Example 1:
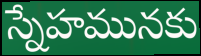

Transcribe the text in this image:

స్నేహమునకు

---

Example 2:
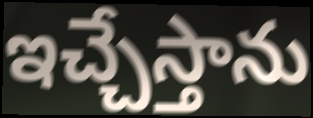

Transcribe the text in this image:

ఇచ్చేస్తాను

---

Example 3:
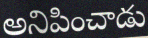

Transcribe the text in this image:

అనిపించాడు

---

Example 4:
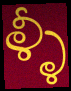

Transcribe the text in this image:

ళ్ళీ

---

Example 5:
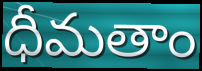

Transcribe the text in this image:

ధీమతాం